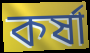
কর্ষা